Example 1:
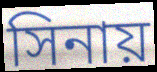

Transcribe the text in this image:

সিনায়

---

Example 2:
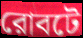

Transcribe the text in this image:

রোবটে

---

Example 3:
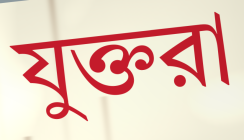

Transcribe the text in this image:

যুক্তরা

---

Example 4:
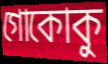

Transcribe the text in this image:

গোকোকু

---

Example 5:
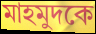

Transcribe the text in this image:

মাহমুদকে